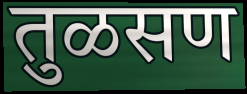
तुळसण